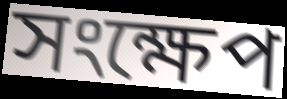
সংক্ষেপ